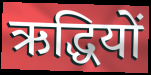
ऋद्धियों